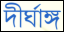
দীর্ঘাঙ্গ